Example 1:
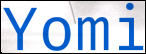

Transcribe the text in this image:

Yomi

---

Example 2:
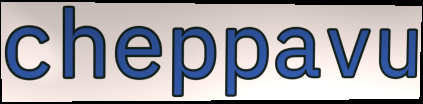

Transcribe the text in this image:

cheppavu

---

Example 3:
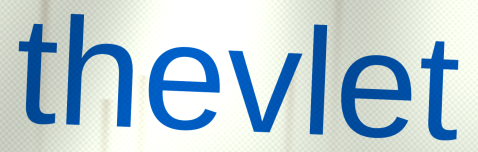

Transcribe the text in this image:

thevlet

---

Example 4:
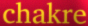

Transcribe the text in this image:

chakre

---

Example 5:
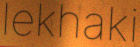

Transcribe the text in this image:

lekhaki